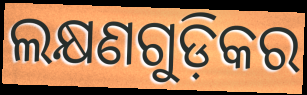
ଲକ୍ଷଣଗୁଡ଼ିକର